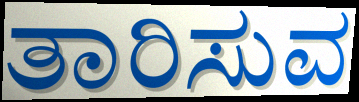
ತಾರಿಸುವ